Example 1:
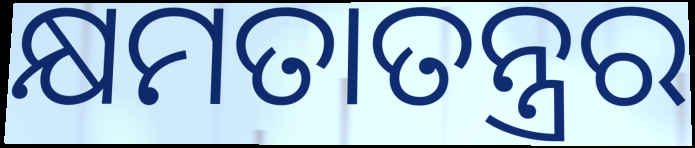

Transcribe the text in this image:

କ୍ଷମତାତନ୍ତ୍ରର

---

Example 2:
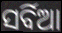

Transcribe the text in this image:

ସର୍ବିଆ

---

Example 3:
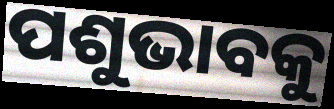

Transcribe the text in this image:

ପଶୁଭାବକୁ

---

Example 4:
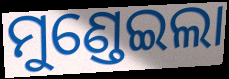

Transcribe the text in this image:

ମୁଣ୍ଡେଇଲା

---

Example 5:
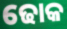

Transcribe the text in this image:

ଢୋକ